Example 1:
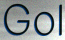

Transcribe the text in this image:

Gol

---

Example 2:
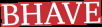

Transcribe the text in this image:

BHAVE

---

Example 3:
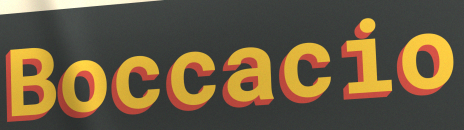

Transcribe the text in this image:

Boccacio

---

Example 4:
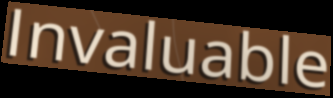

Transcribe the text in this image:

Invaluable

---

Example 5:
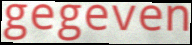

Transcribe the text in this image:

gegeven